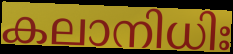
കലാനിധിഃ